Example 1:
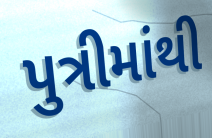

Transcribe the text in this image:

પુત્રીમાંથી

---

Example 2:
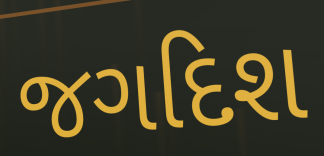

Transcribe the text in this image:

જગદિશ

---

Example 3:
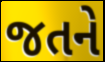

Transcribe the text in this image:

જતને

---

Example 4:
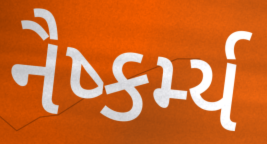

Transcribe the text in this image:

નૈષ્કર્મ્ય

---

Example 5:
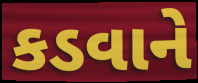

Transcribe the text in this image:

કડવાને